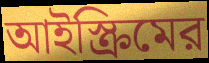
আইস্ক্রিমের